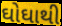
ઘોઘાથી